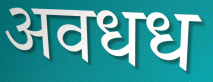
अवधध